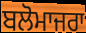
ਬਲੋਮਾਜਰਾ